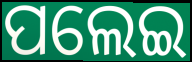
ପଲେଇ